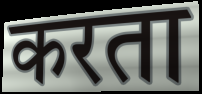
करता